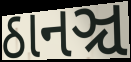
ઠાનઞ્ચ